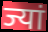
ज्यां